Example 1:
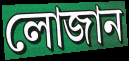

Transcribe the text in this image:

লোজান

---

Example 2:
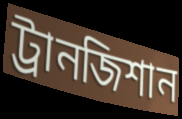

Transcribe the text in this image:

ট্রানজিশান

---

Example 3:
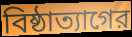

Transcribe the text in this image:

বিষ্ঠাত্যাগের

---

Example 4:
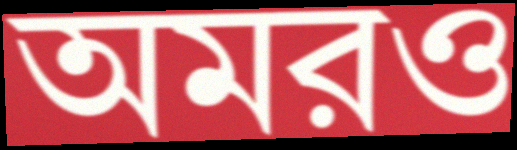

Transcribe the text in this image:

অমরও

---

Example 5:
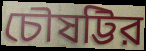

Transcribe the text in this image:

চৌষট্টির